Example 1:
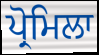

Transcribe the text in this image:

ਪ੍ਰੋਮਿਲਾ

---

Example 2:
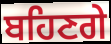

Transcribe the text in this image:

ਬਹਿਣਗੇ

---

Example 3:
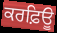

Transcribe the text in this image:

ਕਰਫ਼ਿਊ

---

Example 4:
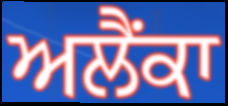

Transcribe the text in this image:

ਅਲੈਂਕਾ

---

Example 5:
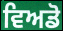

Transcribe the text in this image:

ਵਿਅਡੋ